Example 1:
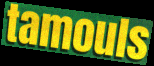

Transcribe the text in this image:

tamouls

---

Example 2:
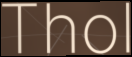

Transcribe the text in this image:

Thol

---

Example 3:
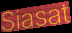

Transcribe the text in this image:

Siasat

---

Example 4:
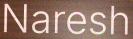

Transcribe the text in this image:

Naresh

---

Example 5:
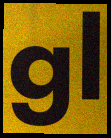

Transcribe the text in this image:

gl